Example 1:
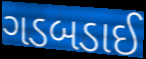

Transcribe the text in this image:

ગડબડાઈ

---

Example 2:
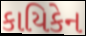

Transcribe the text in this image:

કાયિકેન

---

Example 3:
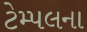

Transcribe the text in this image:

ટેમ્પલના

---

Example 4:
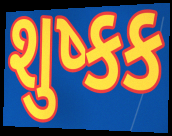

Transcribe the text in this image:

શુષ્કક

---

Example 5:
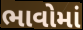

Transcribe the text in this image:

ભાવોમાં